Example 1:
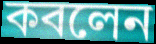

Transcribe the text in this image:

কবলেন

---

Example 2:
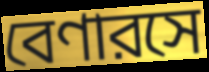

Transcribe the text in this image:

বেণারসে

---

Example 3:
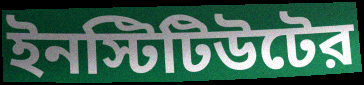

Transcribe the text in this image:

ইনস্টিটিউটের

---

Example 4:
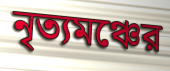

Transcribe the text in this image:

নৃত্যমঞ্চের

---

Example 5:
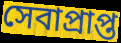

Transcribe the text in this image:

সেবাপ্রাপ্ত